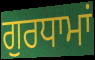
ਗੁਰਧਾਮਾਂ